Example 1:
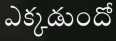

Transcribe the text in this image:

ఎక్కడుందో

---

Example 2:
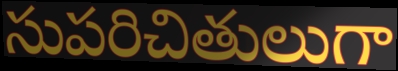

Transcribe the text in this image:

సుపరిచితులుగా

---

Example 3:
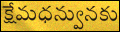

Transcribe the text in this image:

క్షేమధన్వునకు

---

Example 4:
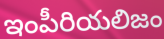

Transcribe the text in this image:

ఇంపీరియలిజం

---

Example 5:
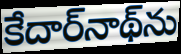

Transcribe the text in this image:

కేదార్‌నాథ్‌ను